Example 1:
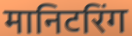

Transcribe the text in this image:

मानिटरिंग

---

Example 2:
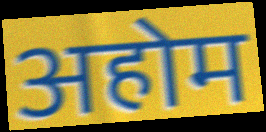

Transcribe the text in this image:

अहोम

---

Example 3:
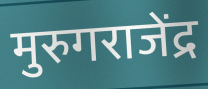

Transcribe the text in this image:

मुरुगराजेंद्र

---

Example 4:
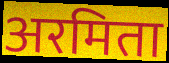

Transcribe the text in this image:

अरमिता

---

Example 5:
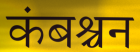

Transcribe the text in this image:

कंबश्चन